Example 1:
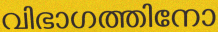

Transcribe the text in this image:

വിഭാഗത്തിനോ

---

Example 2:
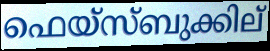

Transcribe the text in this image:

ഫെയ്സ്ബുക്കില്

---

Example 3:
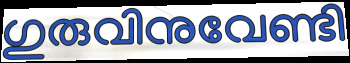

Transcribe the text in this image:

ഗുരുവിനുവേണ്ടി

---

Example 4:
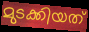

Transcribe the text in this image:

മുടക്കിയത്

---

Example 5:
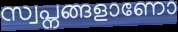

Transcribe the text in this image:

സ്വപ്നങ്ങളാണോ